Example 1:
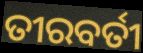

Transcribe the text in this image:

ତୀରବର୍ତୀ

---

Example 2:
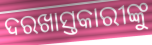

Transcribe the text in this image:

ଦରଖାସ୍ତକାରୀଙ୍କୁ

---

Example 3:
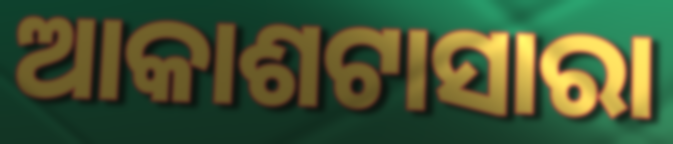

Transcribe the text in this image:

ଆକାଶଟାସାରା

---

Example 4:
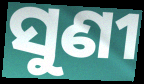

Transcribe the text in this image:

ସୁଣୀ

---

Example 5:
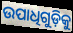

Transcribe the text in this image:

ଉପାଧିଗୁଡ଼ିକୁ